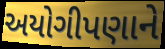
અયોગીપણાને